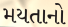
મયતાનો